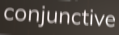
conjunctive